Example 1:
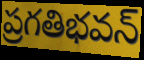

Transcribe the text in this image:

ప్రగతిభవన్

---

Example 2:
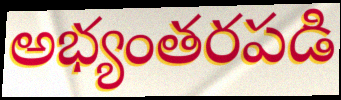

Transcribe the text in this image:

అభ్యంతరపడి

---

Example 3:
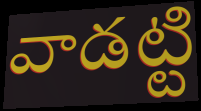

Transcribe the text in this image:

వాడట్టి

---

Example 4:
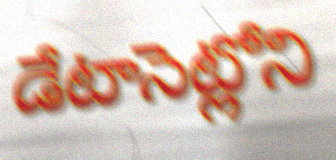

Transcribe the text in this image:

డేటాసెట్లోని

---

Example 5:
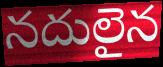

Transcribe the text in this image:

నదులైన